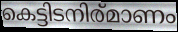
കെട്ടിടനിര്മാണം